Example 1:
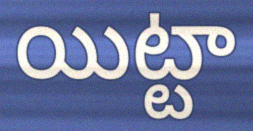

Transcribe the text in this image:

యిట్టా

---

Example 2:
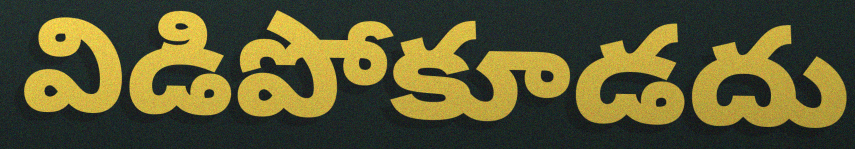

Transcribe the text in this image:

విడిపోకూడదు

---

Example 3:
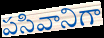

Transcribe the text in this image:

పసివానిగా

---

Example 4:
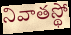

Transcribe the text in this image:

నివాతస్థో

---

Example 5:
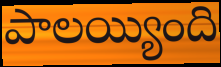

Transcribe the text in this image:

పాలయ్యింది